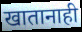
खातानाही